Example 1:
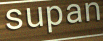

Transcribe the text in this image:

supan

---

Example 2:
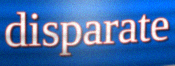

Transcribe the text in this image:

disparate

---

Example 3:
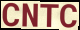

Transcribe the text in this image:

CNTC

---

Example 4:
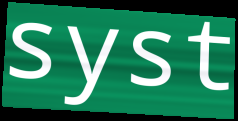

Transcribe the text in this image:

syst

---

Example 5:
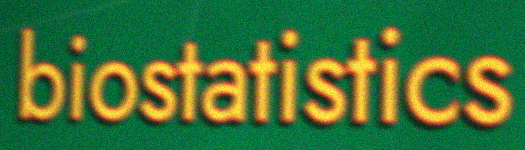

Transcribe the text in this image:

biostatistics